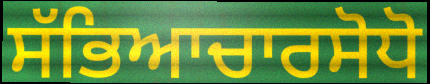
ਸੱਭਿਆਚਾਰਸੋਧੋ